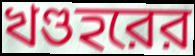
খণ্ডহরের